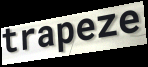
trapeze